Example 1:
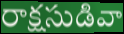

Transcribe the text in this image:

రాక్షసుడివా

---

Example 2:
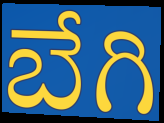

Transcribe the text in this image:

బేగి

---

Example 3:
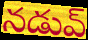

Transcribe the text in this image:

నడువ్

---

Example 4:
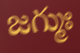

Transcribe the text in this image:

జగ్ముః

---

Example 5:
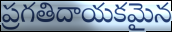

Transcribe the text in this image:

ప్రగతిదాయకమైన